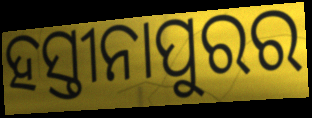
ହସ୍ତୀନାପୁରର